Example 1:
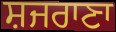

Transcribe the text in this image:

ਸ਼ਜਰਾਣਾ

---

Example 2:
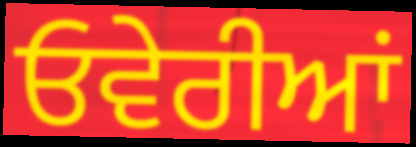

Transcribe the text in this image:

ਓਵੇਰੀਆਂ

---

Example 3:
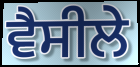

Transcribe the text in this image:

ਵੈਸੀਲੇ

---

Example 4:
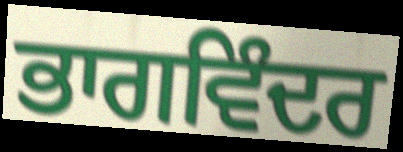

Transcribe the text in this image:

ਭਾਗਵਿੰਦਰ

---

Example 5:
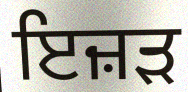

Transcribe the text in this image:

ਇਜ਼ੜ